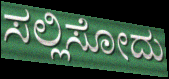
ಸಲ್ಲಿಸೋದು